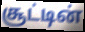
சூட்டின்